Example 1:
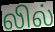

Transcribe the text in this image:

லில்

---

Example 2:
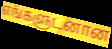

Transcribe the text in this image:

எங்களுடனான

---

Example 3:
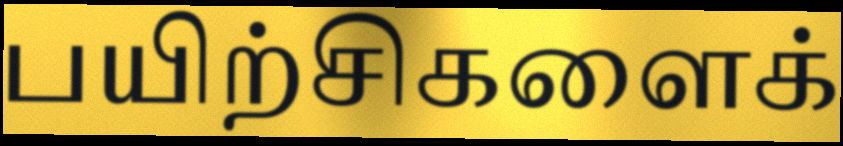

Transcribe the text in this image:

பயிற்சிகளைக்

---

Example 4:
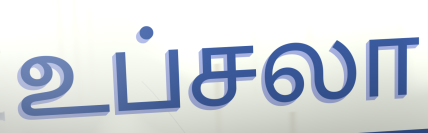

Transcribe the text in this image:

உப்சலா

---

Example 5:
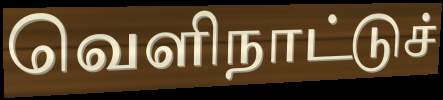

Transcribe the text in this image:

வெளிநாட்டுச்